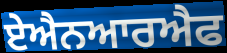
ਏਐਨਆਰਐਫ